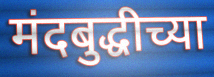
मंदबुद्धीच्या